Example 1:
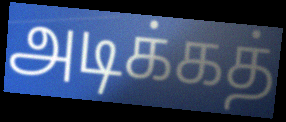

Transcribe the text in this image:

அடிக்கத்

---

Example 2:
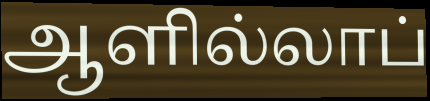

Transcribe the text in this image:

ஆளில்லாப்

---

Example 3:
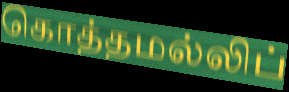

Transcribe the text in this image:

கொத்தமல்லிப்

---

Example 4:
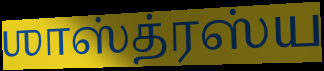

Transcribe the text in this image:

ஶாஸ்த்ரஸ்ய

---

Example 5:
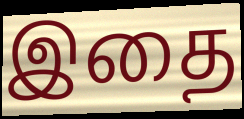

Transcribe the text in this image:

இதை